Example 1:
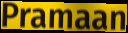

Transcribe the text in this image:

Pramaan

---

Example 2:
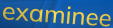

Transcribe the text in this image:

examinee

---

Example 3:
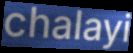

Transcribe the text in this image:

chalayi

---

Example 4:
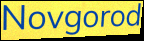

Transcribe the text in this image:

Novgorod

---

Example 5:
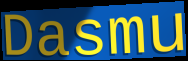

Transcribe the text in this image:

Dasmu